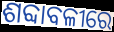
ଶବ୍ଦାବଳୀରେ